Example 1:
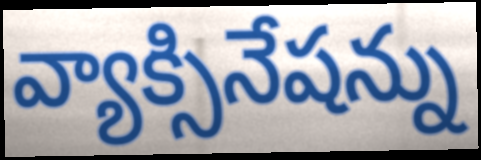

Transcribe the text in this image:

వ్యాక్సినేషన్ను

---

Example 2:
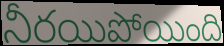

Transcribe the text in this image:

నీరయిపోయింది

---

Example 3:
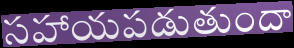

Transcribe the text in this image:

సహాయపడుతుందా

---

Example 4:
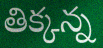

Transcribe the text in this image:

తిక్కన్న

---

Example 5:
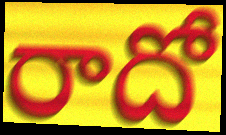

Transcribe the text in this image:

రాదో